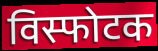
विस्फोटक